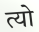
त्यो